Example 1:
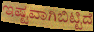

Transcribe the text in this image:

ಇಷ್ಟವಾಗಿಬಿಟ್ಟಿದೆ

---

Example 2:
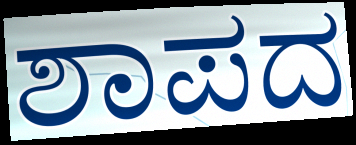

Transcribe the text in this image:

ಶಾಪದ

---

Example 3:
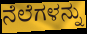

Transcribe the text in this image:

ನೆಲೆಗಳನ್ನು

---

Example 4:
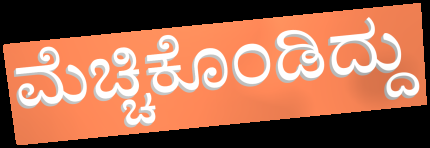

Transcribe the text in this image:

ಮೆಚ್ಚಿಕೊಂಡಿದ್ದು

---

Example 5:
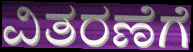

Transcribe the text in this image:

ವಿತರಣೆಗೆ